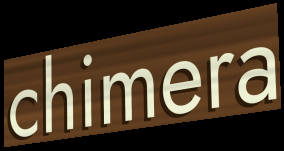
chimera